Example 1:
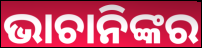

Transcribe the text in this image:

ଭାଚାନିଙ୍କର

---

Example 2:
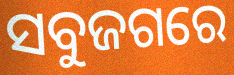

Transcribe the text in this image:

ସବୁଜଗରେ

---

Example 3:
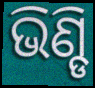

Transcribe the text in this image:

ଭିଣ୍ଡି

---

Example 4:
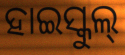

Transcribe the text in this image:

ହାଇସ୍କୁଲ୍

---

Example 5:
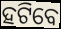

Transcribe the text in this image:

ହଟିବେ